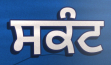
ਸਕੰਟ